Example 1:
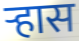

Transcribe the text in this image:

ऱ्हास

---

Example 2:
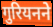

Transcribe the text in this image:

गुरियनने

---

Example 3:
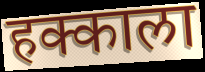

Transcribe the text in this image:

हक्काला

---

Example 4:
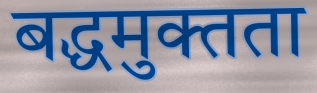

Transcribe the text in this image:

बद्धमुक्तता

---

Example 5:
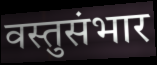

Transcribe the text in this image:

वस्तुसंभार